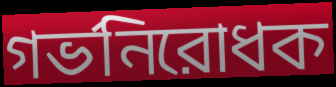
গর্ভনিরোধক